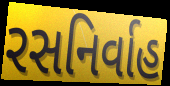
રસનિર્વાહ